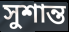
সুশান্ত